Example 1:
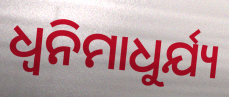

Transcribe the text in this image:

ଧ୍ୱନିମାଧୁର୍ଯ୍ୟ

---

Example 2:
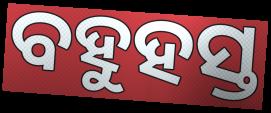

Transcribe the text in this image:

ବହୁହସ୍ତ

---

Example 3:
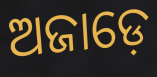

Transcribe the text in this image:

ଅଜାଡ଼େ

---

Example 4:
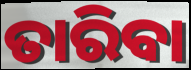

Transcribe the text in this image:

ତାରିବା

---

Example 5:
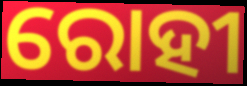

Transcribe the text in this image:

ରୋହୀ